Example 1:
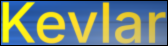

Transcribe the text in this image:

Kevlar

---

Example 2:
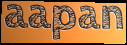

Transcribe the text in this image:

aapan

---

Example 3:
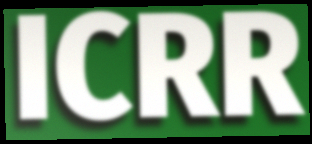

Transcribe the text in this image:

ICRR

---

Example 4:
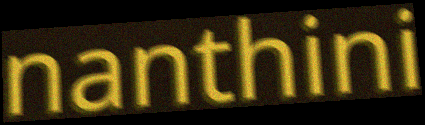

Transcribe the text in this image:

nanthini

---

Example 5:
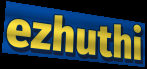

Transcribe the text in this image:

ezhuthi